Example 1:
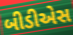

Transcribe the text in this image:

બીડીએસ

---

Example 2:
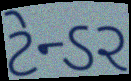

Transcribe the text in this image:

ટેન્ડર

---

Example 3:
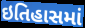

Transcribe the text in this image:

ઇતિહાસમાં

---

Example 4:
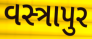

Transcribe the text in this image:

વસ્ત્રાપુર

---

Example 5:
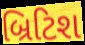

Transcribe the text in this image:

બ્રિટિશ